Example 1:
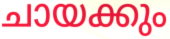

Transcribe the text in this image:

ചായക്കും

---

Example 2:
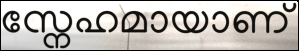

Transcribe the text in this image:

സ്നേഹമായാണ്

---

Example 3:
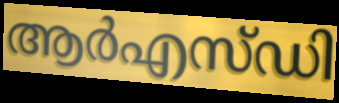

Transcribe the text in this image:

ആർഎസ്ഡി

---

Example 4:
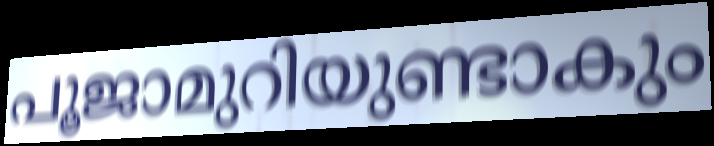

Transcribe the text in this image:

പൂജാമുറിയുണ്ടാകും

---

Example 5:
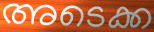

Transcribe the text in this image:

അടെക്ക